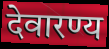
देवारण्य